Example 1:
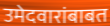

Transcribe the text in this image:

उमेदवारांबाबत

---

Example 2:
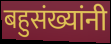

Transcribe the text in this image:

बहुसंख्यांनी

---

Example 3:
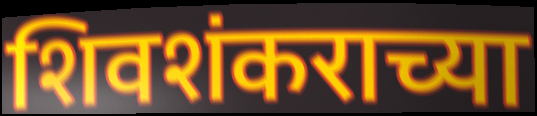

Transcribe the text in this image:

शिवशंकराच्या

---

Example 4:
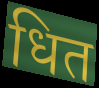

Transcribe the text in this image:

धित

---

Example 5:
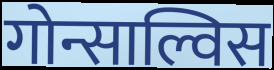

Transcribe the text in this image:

गोन्साल्विस